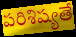
పరిశిష్యతే